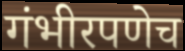
गंभीरपणेच